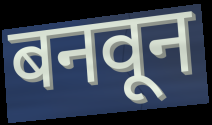
बनवून